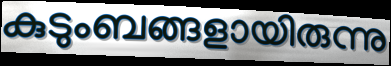
കുടുംബങ്ങളായിരുന്നു